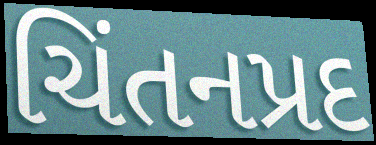
ચિંતનપ્રદ